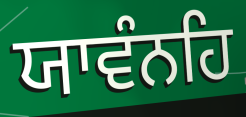
ਯਾਵੰਨਹਿ